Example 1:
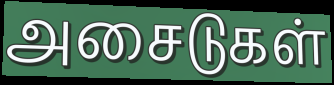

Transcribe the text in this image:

அசைடுகள்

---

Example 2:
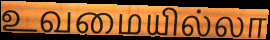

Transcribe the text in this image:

உவமையில்லா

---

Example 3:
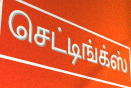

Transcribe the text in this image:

செட்டிங்க்ஸ்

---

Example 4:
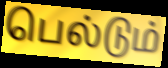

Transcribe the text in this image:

பெல்டும்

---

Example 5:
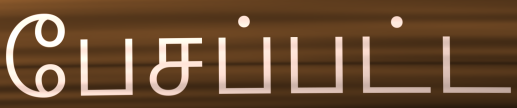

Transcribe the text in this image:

பேசப்பட்ட